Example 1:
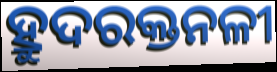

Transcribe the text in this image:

ହ୍ରୁଦରକ୍ତନଳୀ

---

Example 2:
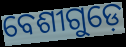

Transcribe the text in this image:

ବେଶୀଗୁଡ଼େ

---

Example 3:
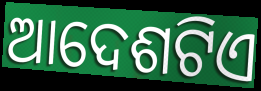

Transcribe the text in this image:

ଆଦେଶଟିଏ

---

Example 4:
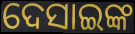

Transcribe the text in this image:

ଦେସାଇଙ୍କ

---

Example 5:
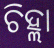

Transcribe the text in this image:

ଚିହ୍ଲା